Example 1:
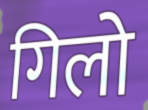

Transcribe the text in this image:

गिलो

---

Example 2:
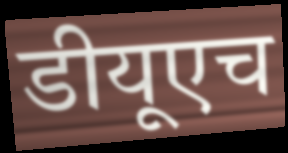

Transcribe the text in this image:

डीयूएच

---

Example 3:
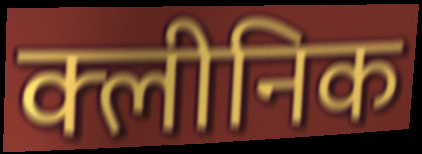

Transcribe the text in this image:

क्‍लीनिक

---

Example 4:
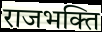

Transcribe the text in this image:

राजभक्ति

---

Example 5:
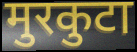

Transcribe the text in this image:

मुरकुटा